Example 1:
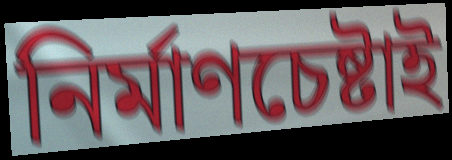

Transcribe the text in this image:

নির্মাণচেষ্টাই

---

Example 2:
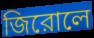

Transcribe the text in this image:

জিরোলে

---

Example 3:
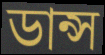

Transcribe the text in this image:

ডান্স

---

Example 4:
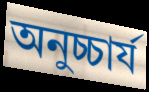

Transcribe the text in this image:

অনুচ্চার্য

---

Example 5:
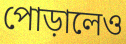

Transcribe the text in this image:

পোড়ালেও